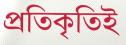
প্রতিকৃতিই